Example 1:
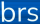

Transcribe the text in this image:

brs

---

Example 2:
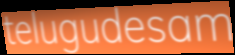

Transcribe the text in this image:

telugudesam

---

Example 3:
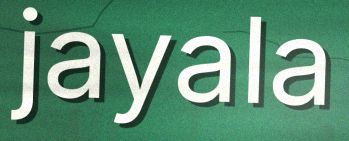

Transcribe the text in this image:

jayala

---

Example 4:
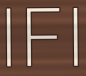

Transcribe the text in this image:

IFI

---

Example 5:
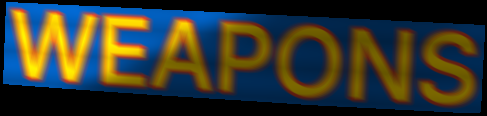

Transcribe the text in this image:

WEAPONS